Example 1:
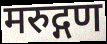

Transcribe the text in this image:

मरुद्गण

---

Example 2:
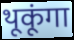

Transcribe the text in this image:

थूकूंगा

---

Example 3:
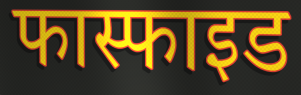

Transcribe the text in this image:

फास्फाइड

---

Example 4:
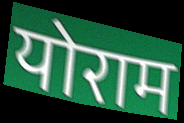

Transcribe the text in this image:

योराम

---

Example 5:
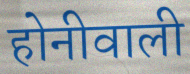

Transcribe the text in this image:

होनीवाली